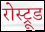
रोस्ट्रूड